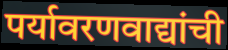
पर्यावरणवाद्यांची